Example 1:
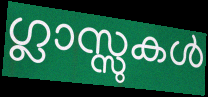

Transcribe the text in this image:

ഗ്ലാസ്സുകൾ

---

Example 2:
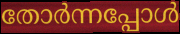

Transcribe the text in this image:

തോർന്നപ്പോൾ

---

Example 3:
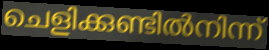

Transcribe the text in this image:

ചെളിക്കുണ്ടിൽനിന്ന്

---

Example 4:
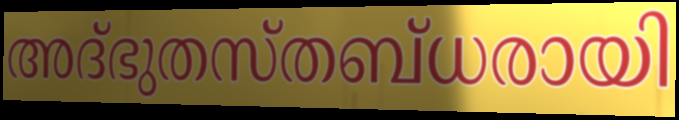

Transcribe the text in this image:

അദ്ഭുതസ്തബ്ധരായി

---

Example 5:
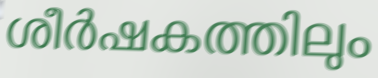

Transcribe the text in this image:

ശീർഷകത്തിലും